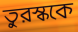
তুরস্ককে